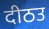
दीठउ